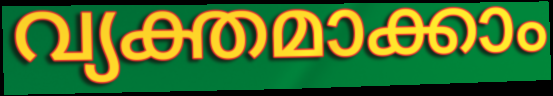
വ്യക്തമാക്കാം